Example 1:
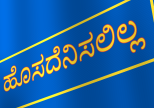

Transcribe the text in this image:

ಹೊಸದೆನಿಸಲಿಲ್ಲ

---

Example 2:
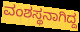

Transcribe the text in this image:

ವಂಶಸ್ಥನಾಗಿದ್ದ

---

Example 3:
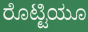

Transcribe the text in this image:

ರೊಟ್ಟಿಯೂ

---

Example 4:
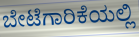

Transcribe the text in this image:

ಬೇಟೆಗಾರಿಕೆಯಲ್ಲಿ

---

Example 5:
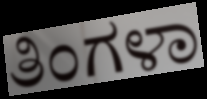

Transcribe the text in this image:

ತಿಂಗಳಾ